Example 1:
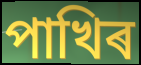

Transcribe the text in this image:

পাখিৰ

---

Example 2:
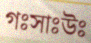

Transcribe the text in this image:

গঃসাঃউঃ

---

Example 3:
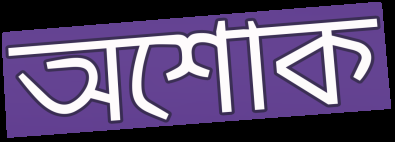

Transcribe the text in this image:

অশোক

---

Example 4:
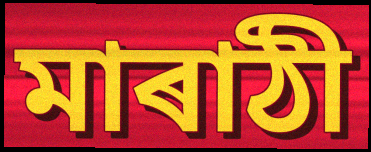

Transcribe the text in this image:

মাৰাঠী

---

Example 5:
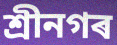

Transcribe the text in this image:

শ্ৰীনগৰ